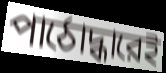
পাঠোদ্ধারেই